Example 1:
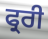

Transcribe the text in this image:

ਫ੍ਰਰੀ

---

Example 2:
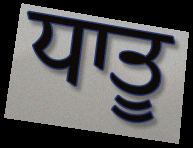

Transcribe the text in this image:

ਧਾਤੂ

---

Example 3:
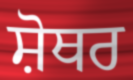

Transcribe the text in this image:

ਸ਼ੋਥਰ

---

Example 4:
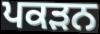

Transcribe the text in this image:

ਪਕੜਨ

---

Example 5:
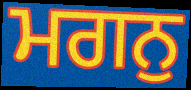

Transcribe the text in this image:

ਮਗਨੁ